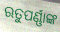
ଋତୁପର୍ଣ୍ଣାଙ୍କ